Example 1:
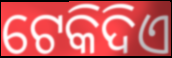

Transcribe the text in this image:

ଟେକିଦିଏ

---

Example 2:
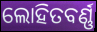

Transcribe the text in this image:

ଲୋହିତବର୍ଣ୍ଣ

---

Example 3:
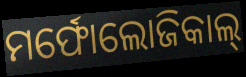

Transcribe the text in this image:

ମର୍ଫୋଲୋଜିକାଲ୍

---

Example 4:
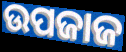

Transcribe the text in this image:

ଉପଜାଜ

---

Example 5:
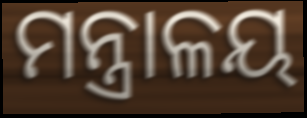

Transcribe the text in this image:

ମନ୍ତ୍ରାଳୟ